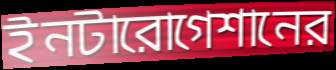
ইনটারোগেশানের